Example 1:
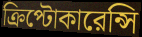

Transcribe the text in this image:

ক্রিপ্টোকারেন্সি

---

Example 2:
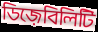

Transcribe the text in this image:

ডিজ়েবিলিটি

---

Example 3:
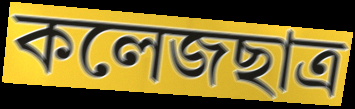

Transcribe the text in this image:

কলেজছাত্র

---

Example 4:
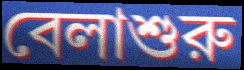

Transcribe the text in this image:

বেলাশুরু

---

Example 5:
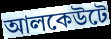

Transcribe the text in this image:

আলকেউটে